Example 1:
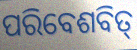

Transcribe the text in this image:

ପରିବେଶବିତ୍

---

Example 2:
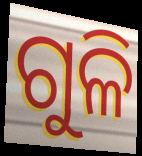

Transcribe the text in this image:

ଗୁଳି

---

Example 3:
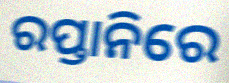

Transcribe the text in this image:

ରପ୍ତାନିରେ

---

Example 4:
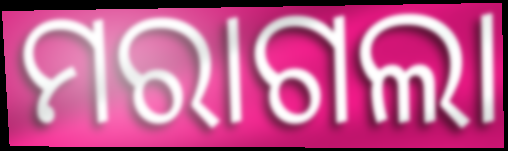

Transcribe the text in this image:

ମରାଗଲା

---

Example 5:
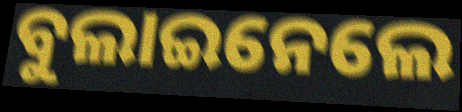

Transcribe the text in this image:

ବୁଲାଇନେଲେ